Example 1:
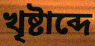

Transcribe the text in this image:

খৃষ্টাব্দে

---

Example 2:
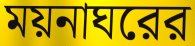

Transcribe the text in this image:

ময়নাঘরের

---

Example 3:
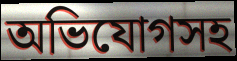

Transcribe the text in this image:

অভিযোগসহ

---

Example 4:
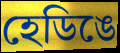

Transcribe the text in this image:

হেডিঙে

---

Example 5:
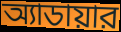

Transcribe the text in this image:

অ্যাডায়ার